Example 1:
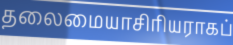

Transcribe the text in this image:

தலைமையாசிரியராகப்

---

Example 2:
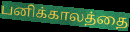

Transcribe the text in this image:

பனிக்காலத்தை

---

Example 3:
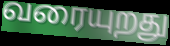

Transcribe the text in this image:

வரையுறது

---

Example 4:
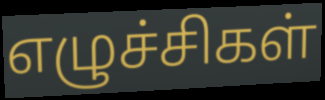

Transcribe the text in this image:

எழுச்சிகள்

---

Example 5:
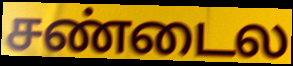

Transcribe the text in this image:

சண்டைல